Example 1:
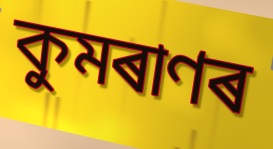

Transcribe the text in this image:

কুমৰাণৰ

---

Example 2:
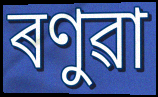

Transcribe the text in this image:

ৰণুৱা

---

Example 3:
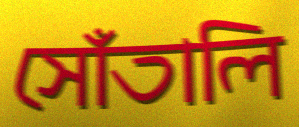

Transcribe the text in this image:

সোঁতালি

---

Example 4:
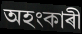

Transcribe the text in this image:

অহংকাৰী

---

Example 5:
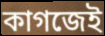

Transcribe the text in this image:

কাগজেই